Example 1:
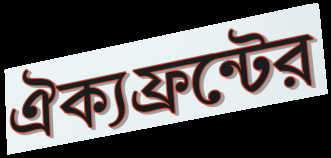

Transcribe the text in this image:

ঐক্যফ্রন্টের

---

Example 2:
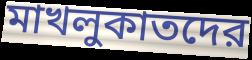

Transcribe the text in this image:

মাখলুকাতদের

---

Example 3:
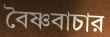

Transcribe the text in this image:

বৈষ্ণবাচার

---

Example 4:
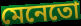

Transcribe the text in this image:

মেনেতো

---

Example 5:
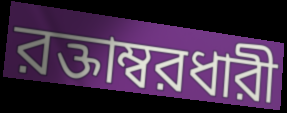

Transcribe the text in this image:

রক্তাম্বরধারী